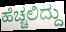
ಹೆಚ್ಚಲಿದ್ದು